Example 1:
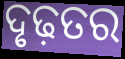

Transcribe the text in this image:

ଦୃଢ଼ତର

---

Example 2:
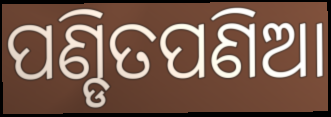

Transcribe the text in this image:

ପଣ୍ଡିତପଣିଆ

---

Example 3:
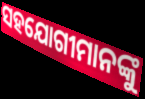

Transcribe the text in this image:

ସହଯୋଗୀମାନଙ୍କୁ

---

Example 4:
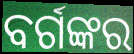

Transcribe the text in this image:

ବର୍ଗଙ୍କର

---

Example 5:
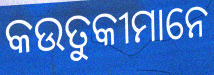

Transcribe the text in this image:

କଉତୁକୀମାନେ